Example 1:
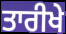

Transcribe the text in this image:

ਤਾਰੀਖੇ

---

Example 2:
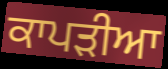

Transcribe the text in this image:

ਕਾਪੜੀਆ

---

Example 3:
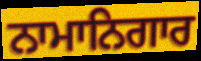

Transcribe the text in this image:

ਨਾਮਾਨਿਗਾਰ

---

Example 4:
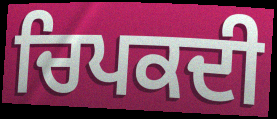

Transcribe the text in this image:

ਚਿਪਕਦੀ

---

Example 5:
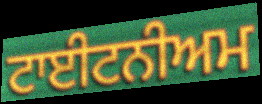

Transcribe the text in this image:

ਟਾਈਟਨੀਅਮ